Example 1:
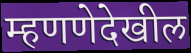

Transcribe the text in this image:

म्हणणेदेखील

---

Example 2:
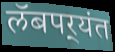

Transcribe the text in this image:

लॅबपर्यंत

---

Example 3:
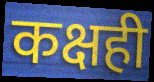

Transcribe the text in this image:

कक्षही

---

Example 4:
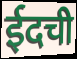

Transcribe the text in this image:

ईदची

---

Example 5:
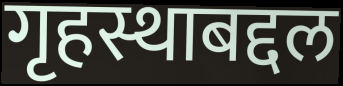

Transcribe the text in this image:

गृहस्थाबद्दल